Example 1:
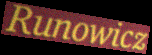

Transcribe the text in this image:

Runowicz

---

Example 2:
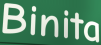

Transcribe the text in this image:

Binita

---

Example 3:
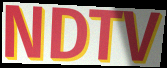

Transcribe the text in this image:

NDTV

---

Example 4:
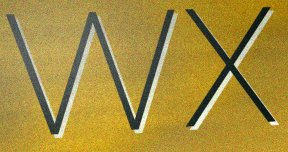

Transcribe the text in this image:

WX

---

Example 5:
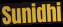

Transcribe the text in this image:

Sunidhi